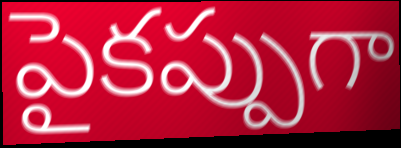
పైకప్పుగా